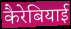
कैरेबियाई